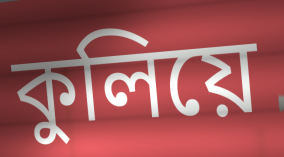
কুলিয়ে